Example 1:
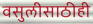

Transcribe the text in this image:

वसुलीसाठीही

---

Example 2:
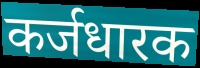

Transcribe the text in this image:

कर्जधारक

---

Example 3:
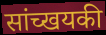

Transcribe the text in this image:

सांच्खयकी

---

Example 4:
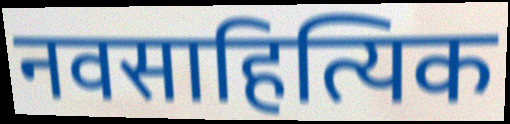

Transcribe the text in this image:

नवसाहित्यिक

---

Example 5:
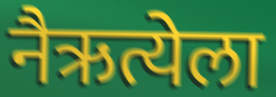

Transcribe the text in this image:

नैऋत्येला